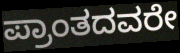
ಪ್ರಾಂತದವರೇ